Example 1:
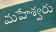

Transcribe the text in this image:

మహేశ్వరు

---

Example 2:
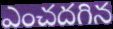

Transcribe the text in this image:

ఎంచదగిన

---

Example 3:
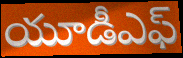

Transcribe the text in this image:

యూడీఎఫ్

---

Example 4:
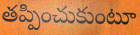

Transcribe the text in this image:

తప్పించుకుంటూ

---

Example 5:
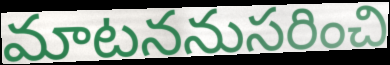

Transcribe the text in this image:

మాటననుసరించి